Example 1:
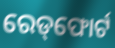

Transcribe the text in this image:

ରେଡ୍‌ଫୋର୍ଟ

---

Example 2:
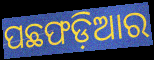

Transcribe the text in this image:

ପଛଫଡ଼ିଆର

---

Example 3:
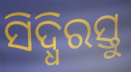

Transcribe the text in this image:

ସିଦ୍ଧିରସ୍ତୁ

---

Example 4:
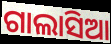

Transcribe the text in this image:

ଗାଲାସିଆ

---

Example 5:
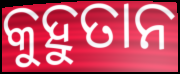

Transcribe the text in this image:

କୁହୁତାନ